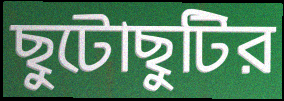
ছুটোছুটির